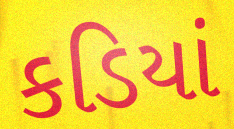
કડિયાં